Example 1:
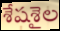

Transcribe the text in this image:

శేషశైల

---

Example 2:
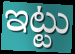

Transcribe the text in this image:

ఇట్టు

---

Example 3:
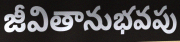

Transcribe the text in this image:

జీవితానుభవపు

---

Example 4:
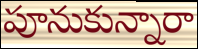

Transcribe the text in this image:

పూనుకున్నారా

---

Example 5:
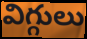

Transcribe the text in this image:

విగ్గులు